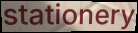
stationery